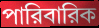
পারিবারিক